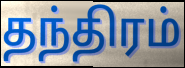
தந்திரம்